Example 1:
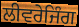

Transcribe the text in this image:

ਲੀਵਰੇਜਿੰਗ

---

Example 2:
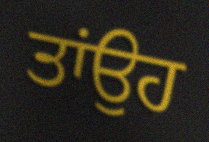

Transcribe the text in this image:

ਤਾਂਉਹ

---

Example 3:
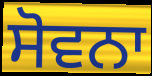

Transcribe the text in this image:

ਸੋਵਨਾ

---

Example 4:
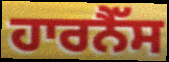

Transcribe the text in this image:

ਹਾਰਨੈੱਸ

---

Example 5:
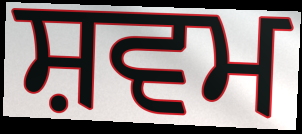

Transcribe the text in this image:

ਸ਼ਵਮ